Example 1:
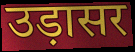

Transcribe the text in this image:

उड़ासर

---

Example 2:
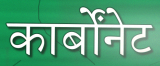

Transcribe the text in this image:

कार्बोंनेट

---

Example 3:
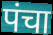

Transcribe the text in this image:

पंचा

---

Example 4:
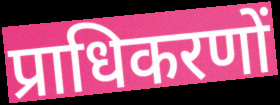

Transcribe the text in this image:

प्राधिकरणों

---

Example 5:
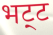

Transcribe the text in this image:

भट्‌ट